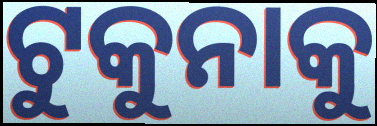
ଟୁକୁନାକୁ